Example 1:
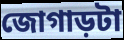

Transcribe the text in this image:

জোগাড়টা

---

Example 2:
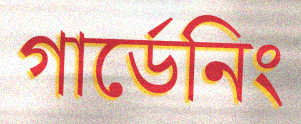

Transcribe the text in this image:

গার্ডেনিং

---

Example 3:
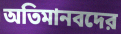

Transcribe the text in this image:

অতিমানবদের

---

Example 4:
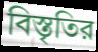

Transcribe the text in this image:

বিস্তৃতির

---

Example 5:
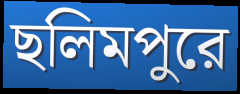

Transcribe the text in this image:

ছলিমপুরে